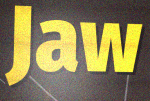
Jaw